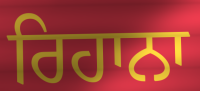
ਰਿਹਾਨਾ